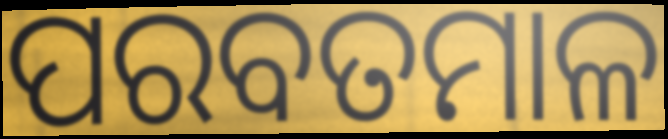
ପରବତମାଳ